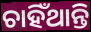
ଚାହିଁଥାନ୍ତି